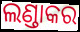
ଲଣ୍ଡାକର